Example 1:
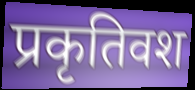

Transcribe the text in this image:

प्रकृतिवश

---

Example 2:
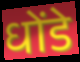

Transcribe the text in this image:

धोंडे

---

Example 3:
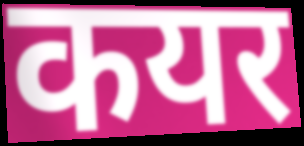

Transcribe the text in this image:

कयर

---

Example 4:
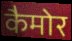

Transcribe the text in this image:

कैमोर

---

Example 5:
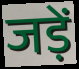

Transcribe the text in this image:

जड़ें